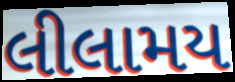
લીલામય